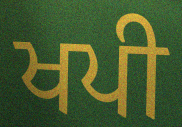
ਖਪੀ